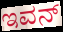
ಇವನ್